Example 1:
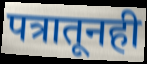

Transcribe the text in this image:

पत्रातूनही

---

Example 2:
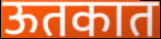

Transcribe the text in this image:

ऊतकात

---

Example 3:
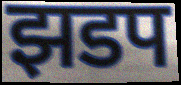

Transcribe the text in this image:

झडप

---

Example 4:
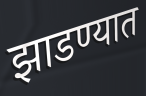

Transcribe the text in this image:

झाडण्यात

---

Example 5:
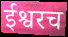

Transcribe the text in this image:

ईश्वरच